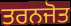
ਤਰਨਜੋਤ